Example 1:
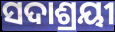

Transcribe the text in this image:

ସଦାଶ୍ରୟୀ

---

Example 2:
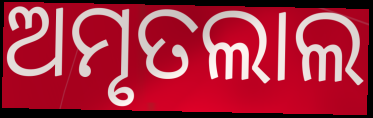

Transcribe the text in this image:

ଅମୃତଲାଲ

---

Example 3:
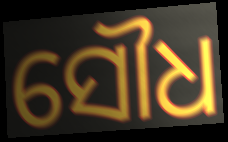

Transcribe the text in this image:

ସୌଧ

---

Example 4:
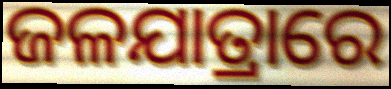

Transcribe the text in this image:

ଜଳଯାତ୍ରାରେ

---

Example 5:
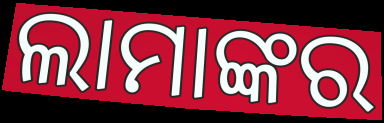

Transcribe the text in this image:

ଲାମାଙ୍କର